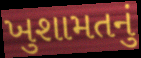
ખુશામતનું